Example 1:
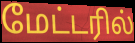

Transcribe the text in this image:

மேட்டரில்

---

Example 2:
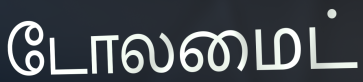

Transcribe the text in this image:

டோலமைட்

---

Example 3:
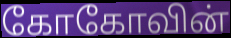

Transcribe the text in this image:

கோகோவின்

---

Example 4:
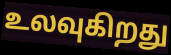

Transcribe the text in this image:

உலவுகிறது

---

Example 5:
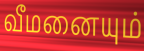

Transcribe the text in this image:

வீமனையும்